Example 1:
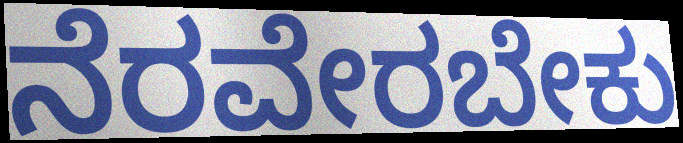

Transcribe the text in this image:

ನೆರವೇರಬೇಕು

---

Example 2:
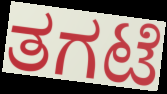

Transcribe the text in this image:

ತಗಟೆ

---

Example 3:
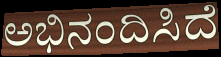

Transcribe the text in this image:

ಅಭಿನಂದಿಸಿದೆ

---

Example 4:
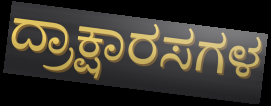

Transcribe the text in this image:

ದ್ರಾಕ್ಷಾರಸಗಳ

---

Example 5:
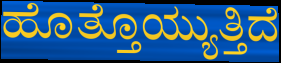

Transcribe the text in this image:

ಹೊತ್ತೊಯ್ಯುತ್ತಿದೆ